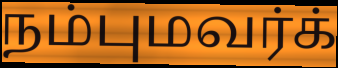
நம்புமவர்க்